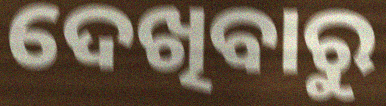
ଦେଖିବାରୁ